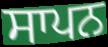
ਸਾਪਨ